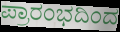
ಪ್ರಾರಂಭದಿಂದ